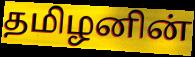
தமிழனின்